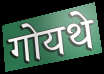
गोयथे